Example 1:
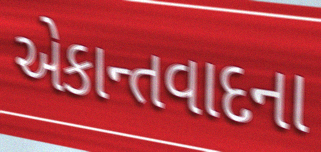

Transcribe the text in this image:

એકાન્તવાદના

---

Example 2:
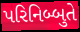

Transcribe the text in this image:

પરિનિબ્બુતે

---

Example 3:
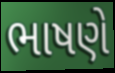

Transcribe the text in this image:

ભાષણે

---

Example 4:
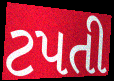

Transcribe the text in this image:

ટપતી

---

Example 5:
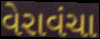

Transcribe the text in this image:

વેરાવંચા